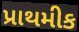
પ્રાથમીક